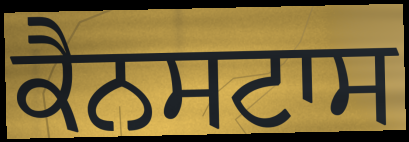
ਕੈਨਸਟਾਸ